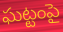
ఘట్టంపై